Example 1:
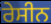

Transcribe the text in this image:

ਰੇਸੀਨ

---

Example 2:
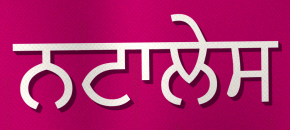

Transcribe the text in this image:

ਨਟਾਲੇਸ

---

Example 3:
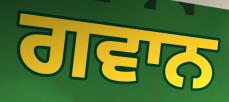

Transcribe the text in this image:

ਗਵਾਨ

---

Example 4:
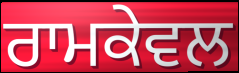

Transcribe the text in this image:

ਰਾਮਕੇਵਲ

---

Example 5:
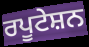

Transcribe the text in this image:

ਰਪੂਟੇਸ਼ਨ